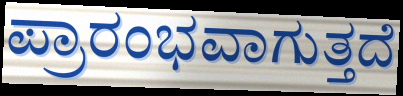
ಪ್ರಾರಂಭವಾಗುತ್ತದೆ